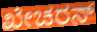
ಖೇಚರನ್